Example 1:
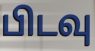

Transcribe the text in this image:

பிடவு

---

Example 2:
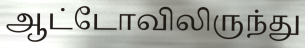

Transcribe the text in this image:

ஆட்டோவிலிருந்து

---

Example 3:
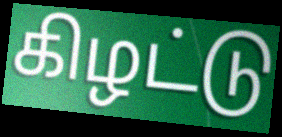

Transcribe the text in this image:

கிழட்டு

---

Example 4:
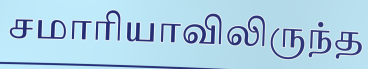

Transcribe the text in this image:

சமாரியாவிலிருந்த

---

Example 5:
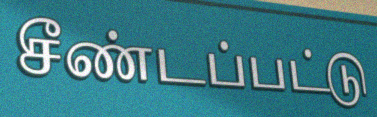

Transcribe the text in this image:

சீண்டப்பட்டு